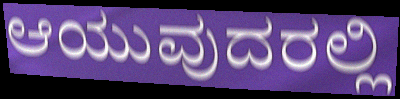
ಆಯುವುದರಲ್ಲಿ